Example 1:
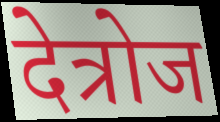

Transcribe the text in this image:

देत्रोज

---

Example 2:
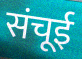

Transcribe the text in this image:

संचूई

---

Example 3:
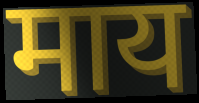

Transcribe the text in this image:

माय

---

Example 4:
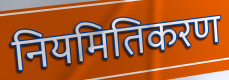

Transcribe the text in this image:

नियमितिकरण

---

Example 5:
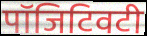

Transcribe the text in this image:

पॉजिटिवटी